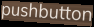
pushbutton